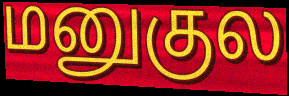
மனுகுல